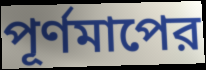
পূর্ণমাপের